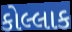
કોલ્લાક